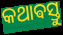
କଥାଵସ୍ତୁ